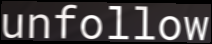
unfollow